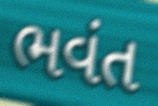
ભવંત